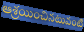
ఆశ్రయించినటువంటి